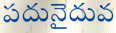
పదునైదువ